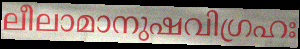
ലീലാമാനുഷവിഗ്രഹഃ